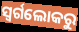
ସ୍ଵର୍ଗଲୋକରୁ